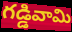
గడ్డివామి